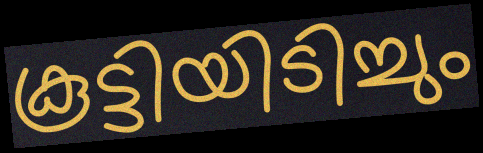
കൂട്ടിയിടിച്ചും